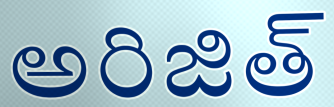
అరిజిత్